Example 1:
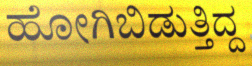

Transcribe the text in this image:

ಹೋಗಿಬಿಡುತ್ತಿದ್ದ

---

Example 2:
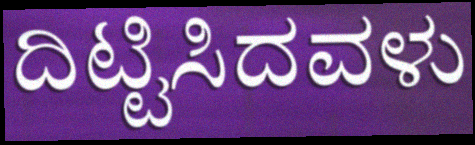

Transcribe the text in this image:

ದಿಟ್ಟಿಸಿದವಳು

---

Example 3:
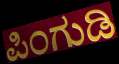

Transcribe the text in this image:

ಪಿಂಗುಡಿ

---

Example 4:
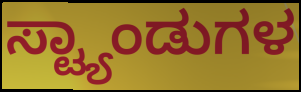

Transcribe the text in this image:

ಸ್ಟ್ಯಾಂಡುಗಳ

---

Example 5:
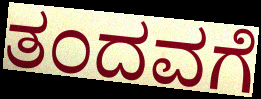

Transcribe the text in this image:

ತಂದವಗೆ